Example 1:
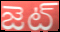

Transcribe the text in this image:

జెట్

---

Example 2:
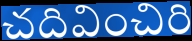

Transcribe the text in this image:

చదివించిరి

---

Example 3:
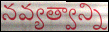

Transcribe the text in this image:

నవ్యత్వాన్ని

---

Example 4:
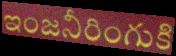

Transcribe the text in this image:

ఇంజనీరింగుకి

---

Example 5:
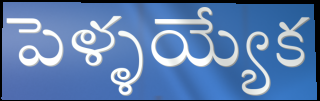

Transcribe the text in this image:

పెళ్ళయ్యేక